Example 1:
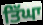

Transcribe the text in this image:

ਤਿੱਘਾ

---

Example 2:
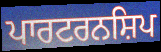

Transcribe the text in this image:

ਪਾਰਟਰਨਸ਼ਿਪ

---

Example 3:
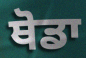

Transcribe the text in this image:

ਥੋਡਾ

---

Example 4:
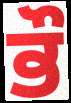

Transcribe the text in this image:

ਭੌ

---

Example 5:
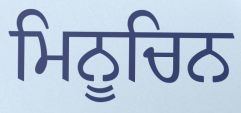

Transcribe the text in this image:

ਮਿਨੂਚਿਨ